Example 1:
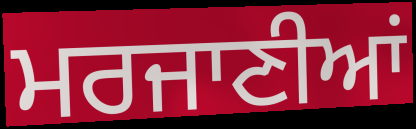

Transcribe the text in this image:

ਮਰਜਾਣੀਆਂ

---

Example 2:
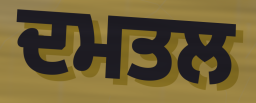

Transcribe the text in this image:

ਦਮਤਲ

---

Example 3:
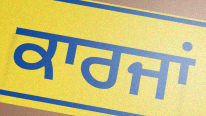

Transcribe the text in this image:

ਕਾਰਜਾਂ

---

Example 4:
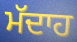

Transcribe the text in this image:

ਮੱਦਾਹ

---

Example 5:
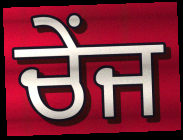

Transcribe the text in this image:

ਚੇਂਜ